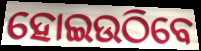
ହୋଇଉଠିବେ